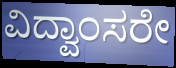
ವಿದ್ವಾಂಸರೇ